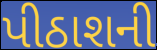
પીઠાશની